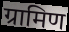
ग्रामिण